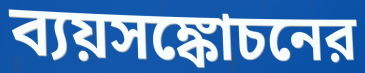
ব্যয়সঙ্কোচনের